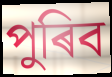
পুৰিব